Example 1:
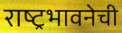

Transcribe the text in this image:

राष्ट्रभावनेची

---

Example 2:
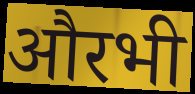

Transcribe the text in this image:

औरभी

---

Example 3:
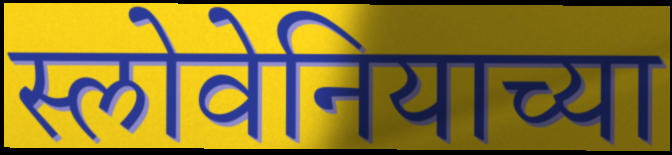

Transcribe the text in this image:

स्लोवेनियाच्या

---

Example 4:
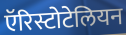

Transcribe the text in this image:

ऍरिस्टोटेलियन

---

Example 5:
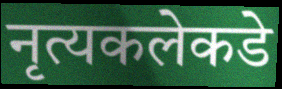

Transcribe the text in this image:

नृत्यकलेकडे